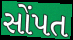
સોંપત